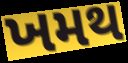
ખમથ